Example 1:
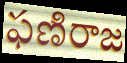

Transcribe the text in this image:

ఫణిరాజ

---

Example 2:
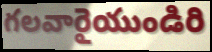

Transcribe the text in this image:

గలవారైయుండిరి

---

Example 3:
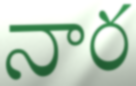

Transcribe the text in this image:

నార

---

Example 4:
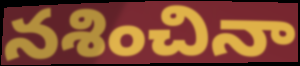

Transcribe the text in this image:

నశించినా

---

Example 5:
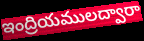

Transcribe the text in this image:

ఇంద్రియములద్వారా